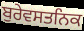
ਬੁਰੇਵਸਤਨਿਕ